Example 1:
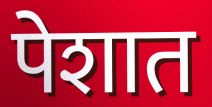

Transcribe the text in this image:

पेशात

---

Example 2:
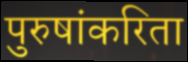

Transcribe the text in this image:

पुरुषांकरिता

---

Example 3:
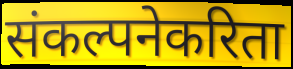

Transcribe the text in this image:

संकल्पनेकरिता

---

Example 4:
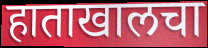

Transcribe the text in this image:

हाताखालचा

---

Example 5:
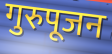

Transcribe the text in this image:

गुरुपूजन